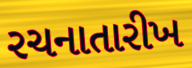
રચનાતારીખ